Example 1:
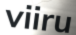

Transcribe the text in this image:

viiru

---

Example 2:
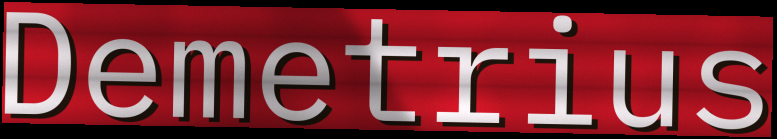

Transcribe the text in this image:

Demetrius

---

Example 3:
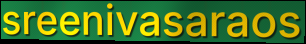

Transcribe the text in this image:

sreenivasaraos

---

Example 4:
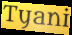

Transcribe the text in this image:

Tyani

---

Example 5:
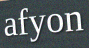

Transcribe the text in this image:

afyon